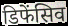
डिफेंसिव